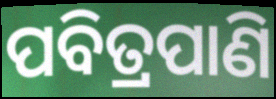
ପବିତ୍ରପାଣି